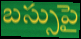
బస్సుపై